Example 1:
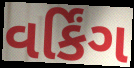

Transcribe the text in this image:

વર્કિંગ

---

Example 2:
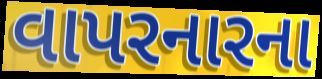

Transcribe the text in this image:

વાપરનારના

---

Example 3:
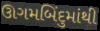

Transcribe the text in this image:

ઊગમબિંદુમાંથી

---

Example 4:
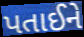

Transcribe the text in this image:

પતાઈને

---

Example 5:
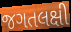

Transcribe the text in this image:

જગતલક્ષી